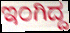
ಇಂಗಿದ್ದ